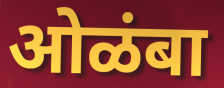
ओळंबा